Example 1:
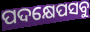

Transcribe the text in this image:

ପଦକ୍ଷେପସବୁ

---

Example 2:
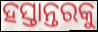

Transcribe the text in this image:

ହସ୍ତାନ୍ତରକୁ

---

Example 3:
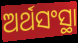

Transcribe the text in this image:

ଅର୍ଥସଂସ୍ଥା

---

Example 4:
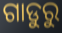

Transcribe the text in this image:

ଗାଡୁରୁ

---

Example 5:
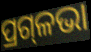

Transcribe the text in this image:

ପ୍ରଗ୍‌ଳଭା